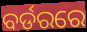
ବର୍ଡରରେ